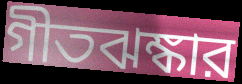
গীতঝঙ্কার